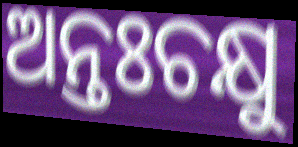
ଅନ୍ତଃଚକ୍ଷୁ